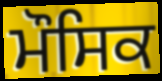
ਮੌਸਿਕ